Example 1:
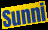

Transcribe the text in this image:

Sunni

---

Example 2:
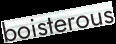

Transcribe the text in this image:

boisterous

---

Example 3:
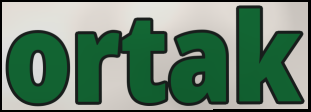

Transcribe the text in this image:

ortak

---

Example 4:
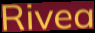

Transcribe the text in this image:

Rivea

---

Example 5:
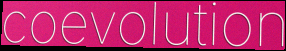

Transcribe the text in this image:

coevolution